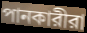
পানকারীরা